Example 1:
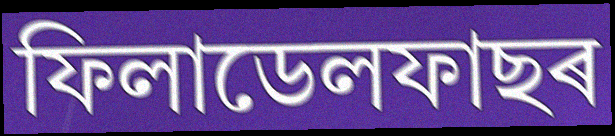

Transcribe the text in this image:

ফিলাডেলফাছৰ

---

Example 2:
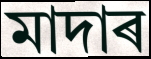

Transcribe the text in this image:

মাদাৰ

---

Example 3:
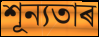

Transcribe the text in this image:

শূন্যতাৰ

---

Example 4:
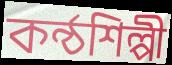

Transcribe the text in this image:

কন্ঠশিল্পী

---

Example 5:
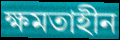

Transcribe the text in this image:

ক্ষমতাহীন